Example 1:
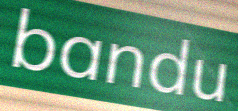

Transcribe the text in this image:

bandu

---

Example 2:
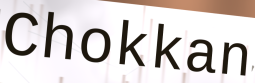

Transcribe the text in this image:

Chokkan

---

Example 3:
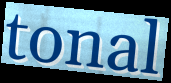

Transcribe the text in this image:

tonal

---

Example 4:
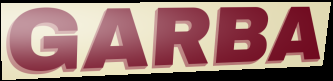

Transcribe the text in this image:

GARBA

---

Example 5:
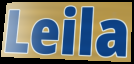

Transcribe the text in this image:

Leila